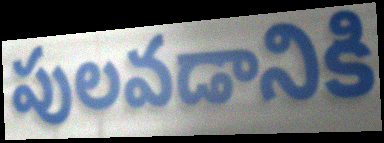
పులవడానికి